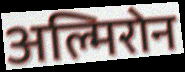
अल्मिरोन